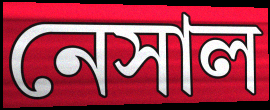
নেসাল